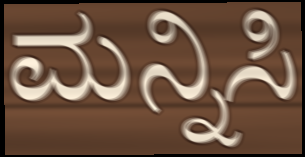
ಮನ್ನಿಸಿ